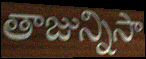
తాజున్నిసా